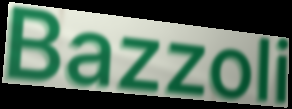
Bazzoli